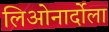
लिओनार्दोला